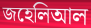
জহেলিআল